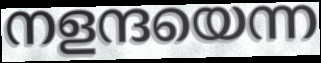
നളന്ദയെന്ന